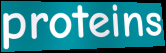
proteins